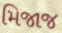
મિજાજ